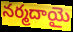
నర్మదాయై